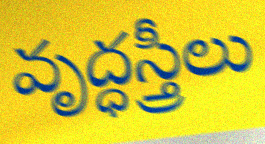
వృద్ధస్త్రీలు